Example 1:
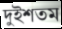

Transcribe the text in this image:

দুইশতম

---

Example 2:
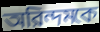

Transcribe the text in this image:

অরিন্দমকে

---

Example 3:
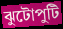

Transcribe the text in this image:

ঝুটোপুটি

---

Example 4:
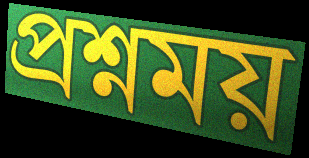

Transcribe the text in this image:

প্রশ্নময়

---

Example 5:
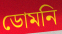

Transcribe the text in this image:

ডোমনি